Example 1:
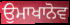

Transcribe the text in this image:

ਉਮਾਖਾਨੋਵ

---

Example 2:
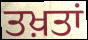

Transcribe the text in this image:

ਤਖ਼ਤਾਂ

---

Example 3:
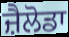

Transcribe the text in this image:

ਜ਼ੈਲੋਡਾ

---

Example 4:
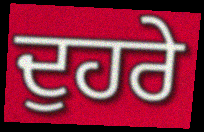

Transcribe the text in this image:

ਦੁਹਰੇ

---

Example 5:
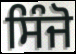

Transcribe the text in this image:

ਸਿੰਜੋ